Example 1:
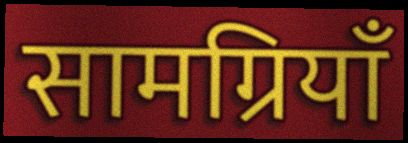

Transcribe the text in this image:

सामग्रियाँ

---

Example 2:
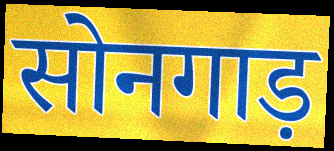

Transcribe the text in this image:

सोनगाड़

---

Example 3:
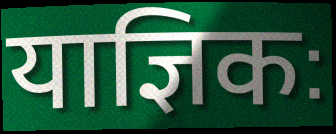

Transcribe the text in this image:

याज्ञिकः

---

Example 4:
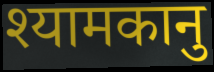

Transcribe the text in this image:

श्यामकानु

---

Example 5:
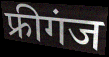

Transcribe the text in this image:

फ्रीगंज